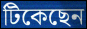
টিকেছেন